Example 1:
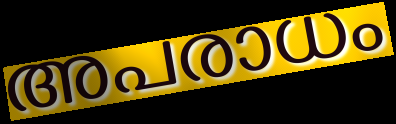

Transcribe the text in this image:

അപരാധം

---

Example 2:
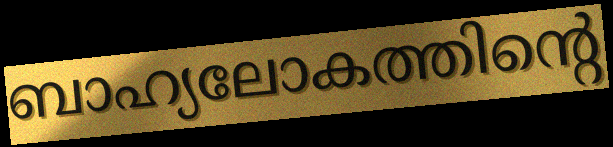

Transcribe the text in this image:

ബാഹ്യലോകത്തിന്റെ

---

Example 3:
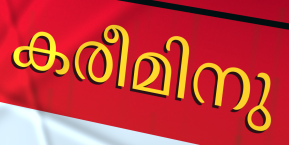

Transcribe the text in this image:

കരീമിനു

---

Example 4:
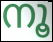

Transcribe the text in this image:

നൂ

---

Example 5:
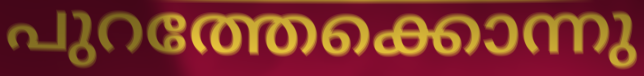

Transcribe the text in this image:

പുറത്തേക്കൊന്നു